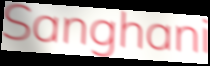
Sanghani